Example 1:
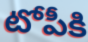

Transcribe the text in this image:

టోపీకి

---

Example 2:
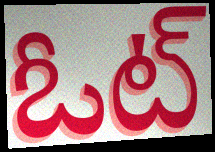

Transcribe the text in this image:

ఓట్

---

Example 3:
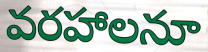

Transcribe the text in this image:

వరహాలనూ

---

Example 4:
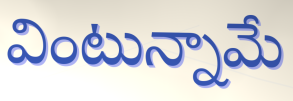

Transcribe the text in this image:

వింటున్నామే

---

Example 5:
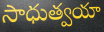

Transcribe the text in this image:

సాధుత్వయా